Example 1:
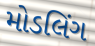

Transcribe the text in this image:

મોડલિંગ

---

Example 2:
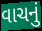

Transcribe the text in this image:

વાચનું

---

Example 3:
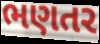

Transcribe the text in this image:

ભણતર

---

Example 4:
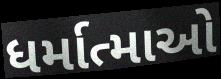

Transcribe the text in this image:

ધર્માત્માઓ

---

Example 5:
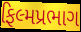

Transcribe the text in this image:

ફિલ્મપ્રભાગ